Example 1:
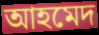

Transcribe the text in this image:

আহমেদ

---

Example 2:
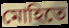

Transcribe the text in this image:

মোহিতে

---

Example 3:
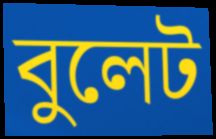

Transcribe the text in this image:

বুলেট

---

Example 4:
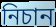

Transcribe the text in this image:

নিচান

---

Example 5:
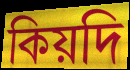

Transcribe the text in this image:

কিয়দি